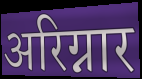
अरिग्नार